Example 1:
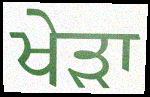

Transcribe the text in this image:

ਖੇੜਾ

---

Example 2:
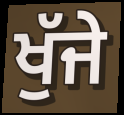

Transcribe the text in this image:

ਖੁੱਜੇ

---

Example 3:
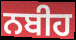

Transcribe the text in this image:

ਨਬੀਹ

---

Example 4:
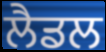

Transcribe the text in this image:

ਲੈਡਲ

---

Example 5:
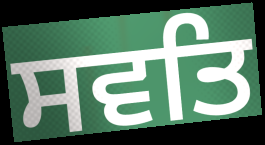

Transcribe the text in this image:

ਸਵਤਿ